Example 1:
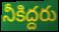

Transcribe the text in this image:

నీకిద్దరు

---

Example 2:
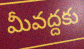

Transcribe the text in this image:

మీవద్దకు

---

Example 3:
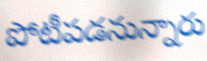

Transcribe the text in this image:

పోటీపడనున్నారు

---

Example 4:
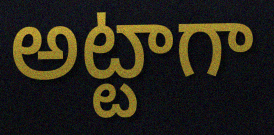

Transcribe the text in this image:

అట్టాగా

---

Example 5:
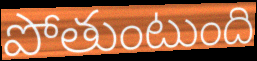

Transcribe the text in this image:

పోతుంటుంది